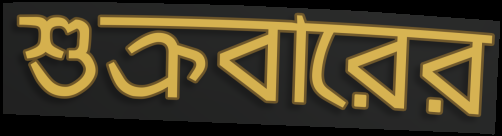
শুক্রবারের